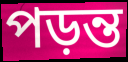
পড়ন্ত